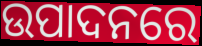
ଉପାଦନରେ